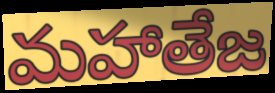
మహాతేజ